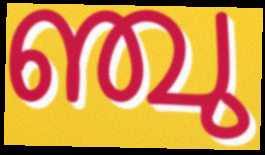
ഞ്ചു